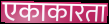
एकाकारता